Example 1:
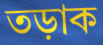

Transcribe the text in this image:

তড়াক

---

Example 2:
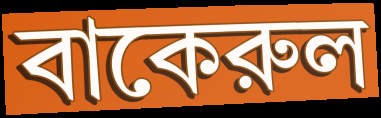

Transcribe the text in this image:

বাকেরুল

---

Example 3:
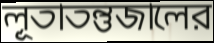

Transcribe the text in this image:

লূতাতন্তুজালের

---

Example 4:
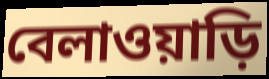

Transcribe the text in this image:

বেলাওয়াড়ি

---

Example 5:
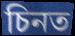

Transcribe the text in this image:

চিনত